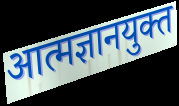
आत्मज्ञानयुक्त